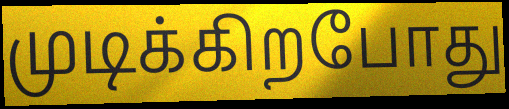
முடிக்கிறபோது